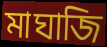
মাঘাজি